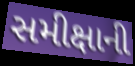
સમીક્ષાની